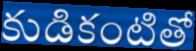
కుడికంటితో